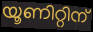
യൂണിറ്റിന്